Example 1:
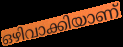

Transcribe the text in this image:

ഒഴിവാക്കിയാണ്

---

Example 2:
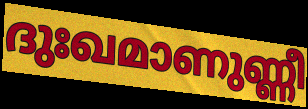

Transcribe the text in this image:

ദുഃഖമാണുണ്ണീ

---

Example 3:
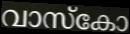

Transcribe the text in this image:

വാസ്കോ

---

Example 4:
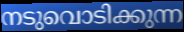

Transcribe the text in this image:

നടുവൊടിക്കുന്ന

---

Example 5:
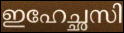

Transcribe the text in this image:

ഇഹേച്ഛസി